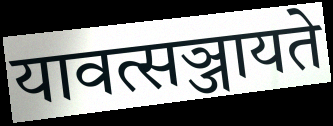
यावत्सञ्जायते